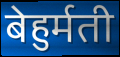
बेहुर्मती